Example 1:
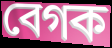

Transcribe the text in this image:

বেগক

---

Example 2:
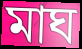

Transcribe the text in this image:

মাঘ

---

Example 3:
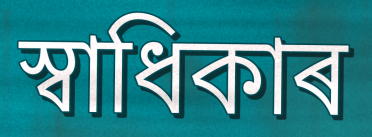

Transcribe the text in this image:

স্বাধিকাৰ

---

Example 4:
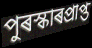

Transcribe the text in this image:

পুৰস্কাৰপ্ৰাপ্ত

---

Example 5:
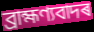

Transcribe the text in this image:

ব্ৰাহ্মণ্যবাদৰ